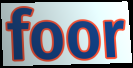
foor